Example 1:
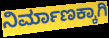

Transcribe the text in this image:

ನಿರ್ಮಾಣಕ್ಕಾಗಿ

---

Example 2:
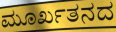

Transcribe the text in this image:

ಮೂರ್ಖತನದ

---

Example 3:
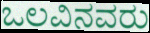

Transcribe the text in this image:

ಒಲವಿನವರು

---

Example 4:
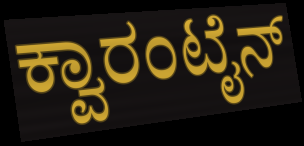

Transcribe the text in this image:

ಕ್ವಾರಂಟೈನ್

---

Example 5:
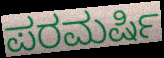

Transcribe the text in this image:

ಪರಮರ್ಷಿ